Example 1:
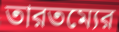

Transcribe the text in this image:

তারতম্যের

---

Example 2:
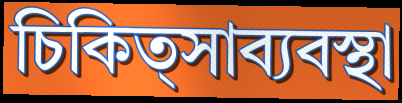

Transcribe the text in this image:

চিকিত্সাব্যবস্থা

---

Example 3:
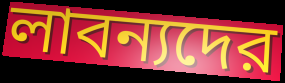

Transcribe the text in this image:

লাবন্যদের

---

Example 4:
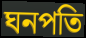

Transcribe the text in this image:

ঘনপতি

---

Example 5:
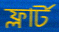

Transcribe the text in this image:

ফ্লার্ট